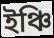
ইঞ্চি